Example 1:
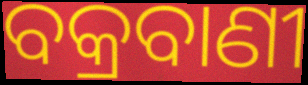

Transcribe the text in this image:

ବକ୍ରବାଣୀ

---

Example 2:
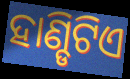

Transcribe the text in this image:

ହାଣ୍ଡିଟିଏ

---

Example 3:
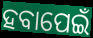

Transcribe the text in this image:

ହବାପେଇଁ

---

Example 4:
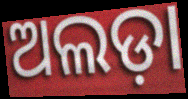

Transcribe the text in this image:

ଅଲଡ଼ା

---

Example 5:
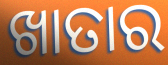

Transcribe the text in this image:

ଖାତାର